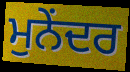
ਮੁਨੇਂਦਰ